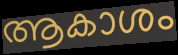
ആകാശം